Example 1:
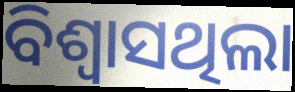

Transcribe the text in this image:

ବିଶ୍ୱାସଥିଲା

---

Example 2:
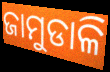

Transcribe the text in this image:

ଜାମୁଡାଳି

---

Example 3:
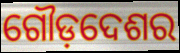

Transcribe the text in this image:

ଗୌଡ଼ଦେଶର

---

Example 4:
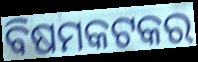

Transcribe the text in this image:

ବିଷମକଟକର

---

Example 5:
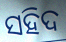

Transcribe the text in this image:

ସହିଦ